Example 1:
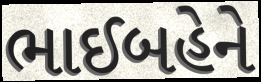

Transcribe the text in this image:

ભાઈબહેને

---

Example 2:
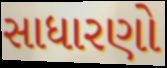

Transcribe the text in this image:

સાધારણો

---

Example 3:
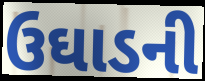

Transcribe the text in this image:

ઉઘાડની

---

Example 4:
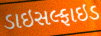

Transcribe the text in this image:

ડાઇસલ્ફાઇડ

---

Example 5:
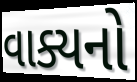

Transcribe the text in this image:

વાક્યનો